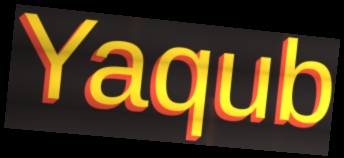
Yaqub